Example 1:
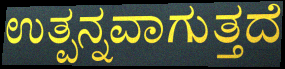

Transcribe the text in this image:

ಉತ್ಪನ್ನವಾಗುತ್ತದೆ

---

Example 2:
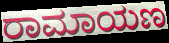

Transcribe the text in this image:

ರಾಮಾಯಣ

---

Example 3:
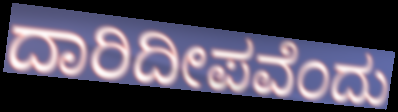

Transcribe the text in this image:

ದಾರಿದೀಪವೆಂದು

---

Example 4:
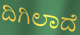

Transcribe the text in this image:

ದಿಗಿಲಾದೆ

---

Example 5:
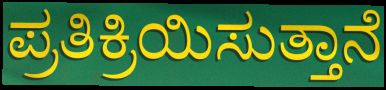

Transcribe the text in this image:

ಪ್ರತಿಕ್ರಿಯಿಸುತ್ತಾನೆ